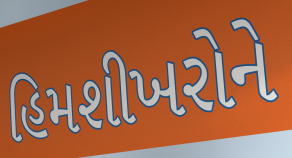
હિમશીખરોને